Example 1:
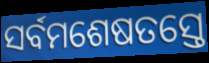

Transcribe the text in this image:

ସର୍ବମଶେଷତସ୍ତେ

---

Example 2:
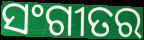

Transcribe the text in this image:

ସଂଗୀତର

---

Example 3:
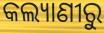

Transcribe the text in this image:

କଲ୍ୟାଣୀରୁ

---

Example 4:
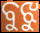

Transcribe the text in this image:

ବୁଝୁ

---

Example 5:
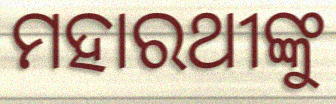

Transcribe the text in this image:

ମହାରଥୀଙ୍କୁ